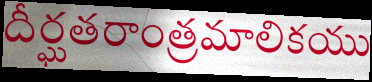
దీర్ఘతరాంత్రమాలికయు